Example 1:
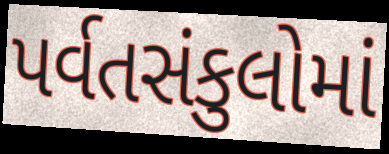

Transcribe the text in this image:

પર્વતસંકુલોમાં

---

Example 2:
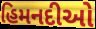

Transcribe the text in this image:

હિમનદીઓ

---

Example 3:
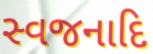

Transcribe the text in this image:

સ્વજનાદિ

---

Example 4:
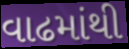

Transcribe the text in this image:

વાઢમાંથી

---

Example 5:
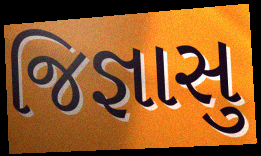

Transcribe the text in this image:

જિજ્ઞાસુ